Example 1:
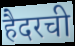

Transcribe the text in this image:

हैदरची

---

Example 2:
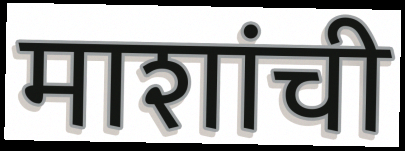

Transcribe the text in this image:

माशांची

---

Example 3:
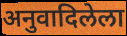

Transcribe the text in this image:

अनुवादिलेला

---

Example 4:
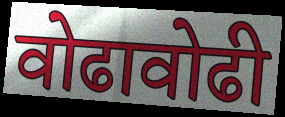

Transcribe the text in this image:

वोढावोढी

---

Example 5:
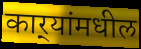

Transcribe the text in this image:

कार्यांमधील